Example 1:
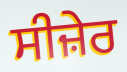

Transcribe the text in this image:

ਸੀਜ਼ੇਰ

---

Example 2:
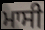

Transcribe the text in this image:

ਮਾਸੀ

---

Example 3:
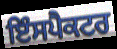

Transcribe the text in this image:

ਇੰਸਪੈਕਟਰ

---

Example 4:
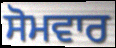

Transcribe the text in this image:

ਸੋਮਵਾਰ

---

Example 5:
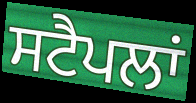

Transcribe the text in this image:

ਸਟੈਪਲਾਂ